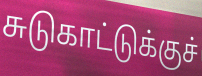
சுடுகாட்டுக்குச்